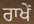
ਰਾਖੇਂ